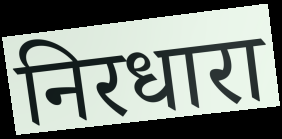
निरधारा